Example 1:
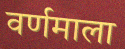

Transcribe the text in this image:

वर्णमाला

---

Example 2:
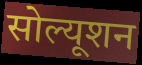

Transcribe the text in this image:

सोल्‍यूशन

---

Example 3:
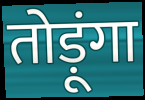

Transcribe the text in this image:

तोड़ूंगा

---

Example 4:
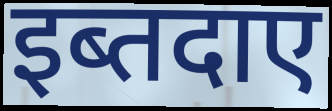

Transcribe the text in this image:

इब्तदाए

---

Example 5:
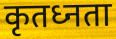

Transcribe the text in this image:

कृतध्नता